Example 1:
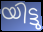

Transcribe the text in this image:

യിട്ടു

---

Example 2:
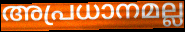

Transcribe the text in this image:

അപ്രധാനമല്ല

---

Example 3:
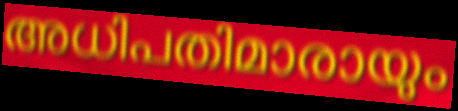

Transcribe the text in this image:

അധിപതിമാരായും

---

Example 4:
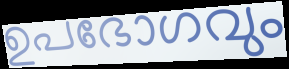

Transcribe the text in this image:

ഉപഭോഗവും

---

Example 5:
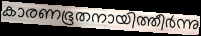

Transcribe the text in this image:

കാരണഭൂതനായിത്തീർന്നു